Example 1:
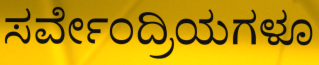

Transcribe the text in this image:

ಸರ್ವೇಂದ್ರಿಯಗಳೂ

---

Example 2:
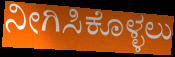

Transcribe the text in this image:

ನೀಗಿಸಿಕೊಳ್ಳಲು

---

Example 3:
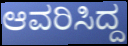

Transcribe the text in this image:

ಆವರಿಸಿದ್ದ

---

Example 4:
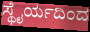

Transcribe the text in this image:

ಸ್ಥೈರ್ಯದಿಂದ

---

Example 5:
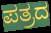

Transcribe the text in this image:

ಪತ್ರದ